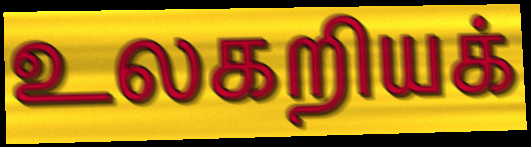
உலகறியக்